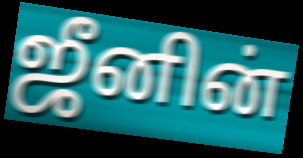
ஜீனின்